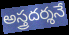
అస్త్రదర్శనే